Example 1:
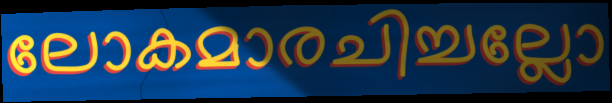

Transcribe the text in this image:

ലോകമാരചിച്ചല്ലോ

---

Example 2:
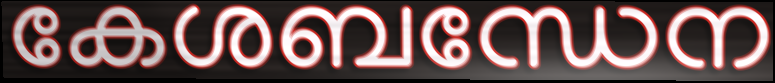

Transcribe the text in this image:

കേശബന്ധേന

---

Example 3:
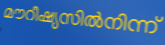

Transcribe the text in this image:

മൗറീഷ്യസിൽനിന്ന്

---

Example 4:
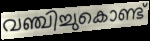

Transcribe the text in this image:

വഞ്ചിച്ചുകൊണ്ട്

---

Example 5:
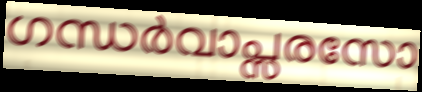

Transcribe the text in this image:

ഗന്ധർവാപ്സരസോ